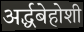
अर्द्धबेहोशी